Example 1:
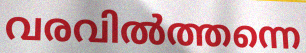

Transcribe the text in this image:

വരവിൽത്തന്നെ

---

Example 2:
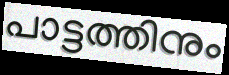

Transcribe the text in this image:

പാട്ടത്തിനും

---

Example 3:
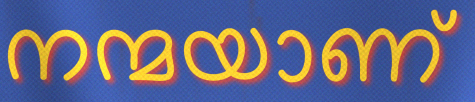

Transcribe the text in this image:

നന്മയാണ്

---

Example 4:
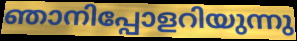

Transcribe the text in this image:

ഞാനിപ്പോളറിയുന്നു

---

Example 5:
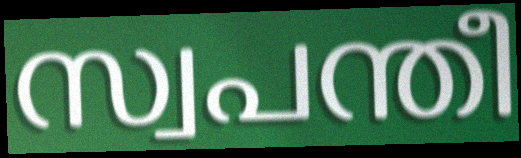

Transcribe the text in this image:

സ്വപന്തീ